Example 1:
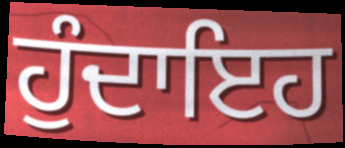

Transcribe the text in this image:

ਹੁੰਦਾਇਹ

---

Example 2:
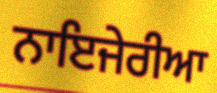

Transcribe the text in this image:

ਨਾਇਜੇਰੀਆ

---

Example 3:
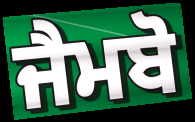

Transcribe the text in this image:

ਜੈਮਬੋ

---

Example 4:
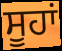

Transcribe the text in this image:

ਸੂਹਾਂ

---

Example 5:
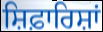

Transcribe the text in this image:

ਸ਼ਿਫ਼ਾਰਿਸ਼ਾਂ